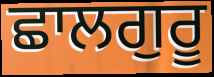
ਛਾਲਗੁਰੂ